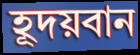
হূদয়বান